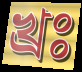
খ্রঃ